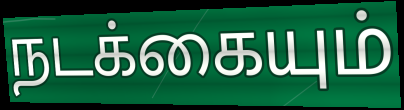
நடக்கையும்